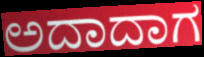
ಅದಾದಾಗ